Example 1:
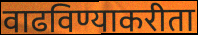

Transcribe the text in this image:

वाढविण्याकरीता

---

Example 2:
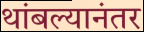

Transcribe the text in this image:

थांबल्यानंतर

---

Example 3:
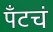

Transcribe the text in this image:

पँटचं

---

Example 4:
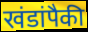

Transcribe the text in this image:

खंडांपैकी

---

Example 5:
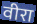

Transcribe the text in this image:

वीरा